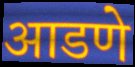
आडणे